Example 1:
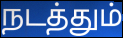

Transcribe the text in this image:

நடத்தும்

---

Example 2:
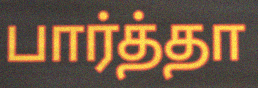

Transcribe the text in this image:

பார்த்தா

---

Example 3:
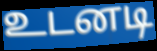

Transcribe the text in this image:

உடனடி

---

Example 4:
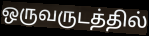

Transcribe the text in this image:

ஒருவருடத்தில்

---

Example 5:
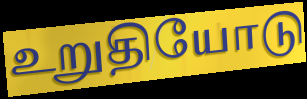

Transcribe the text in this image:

உறுதியோடு